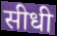
सीधी